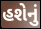
હશેનું